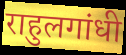
राहुलगांधी